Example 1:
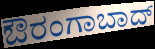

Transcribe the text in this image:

ಔರಂಗಾಬಾದ್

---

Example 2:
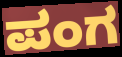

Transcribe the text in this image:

ಪಂಗ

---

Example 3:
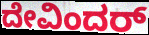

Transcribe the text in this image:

ದೇವಿಂದರ್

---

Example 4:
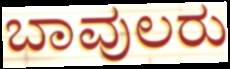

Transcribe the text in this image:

ಬಾವುಲರು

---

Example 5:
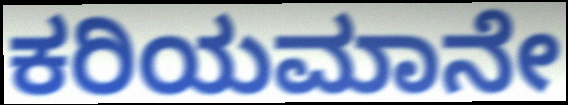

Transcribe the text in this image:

ಕರಿಯಮಾನೇ